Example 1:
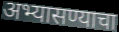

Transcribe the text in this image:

अभ्यासण्याचा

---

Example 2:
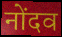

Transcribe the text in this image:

नोंदव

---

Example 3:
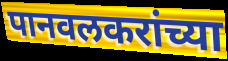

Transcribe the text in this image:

पानवलकरांच्या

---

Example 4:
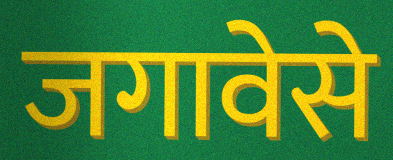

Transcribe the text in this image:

जगावेसे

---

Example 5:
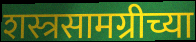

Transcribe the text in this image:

शस्त्रसामग्रीच्या